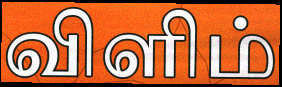
விளிம்